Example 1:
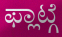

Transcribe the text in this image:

ಫ್ಲಾಟ್ಗೆ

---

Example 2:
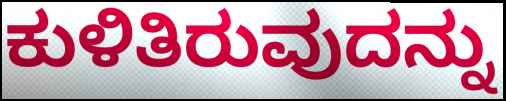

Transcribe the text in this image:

ಕುಳಿತಿರುವುದನ್ನು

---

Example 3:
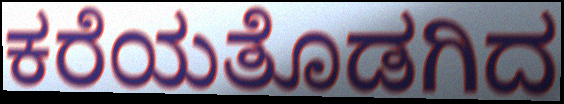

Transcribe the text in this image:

ಕರೆಯತೊಡಗಿದ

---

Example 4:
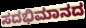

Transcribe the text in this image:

ಸದಭಿಮಾನದ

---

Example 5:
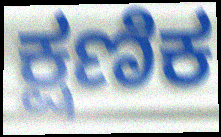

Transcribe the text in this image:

ಕ್ಷಣಿಕ